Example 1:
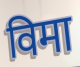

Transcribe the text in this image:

विमा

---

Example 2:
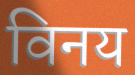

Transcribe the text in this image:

विनय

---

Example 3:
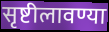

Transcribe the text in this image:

सृष्टीलावण्या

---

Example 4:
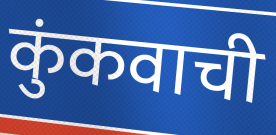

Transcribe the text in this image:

कुंकवाची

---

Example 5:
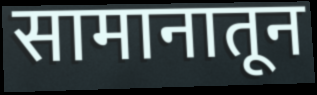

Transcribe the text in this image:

सामानातून